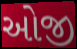
ઓજી